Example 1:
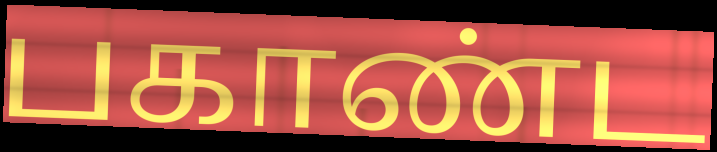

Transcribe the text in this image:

பகாண்ட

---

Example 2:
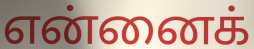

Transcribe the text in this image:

என்னைக்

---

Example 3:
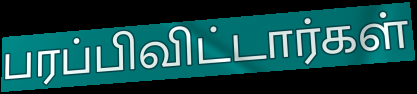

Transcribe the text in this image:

பரப்பிவிட்டார்கள்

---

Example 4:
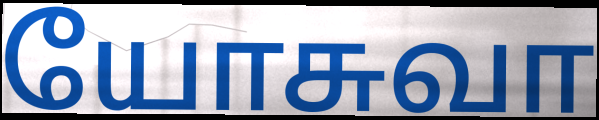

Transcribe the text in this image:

யோசுவா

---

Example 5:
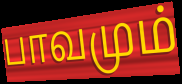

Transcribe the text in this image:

பாவமும்